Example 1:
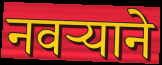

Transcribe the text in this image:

नवर्‍याने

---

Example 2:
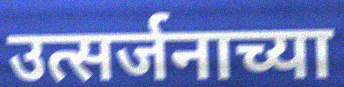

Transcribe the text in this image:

उत्सर्जनाच्या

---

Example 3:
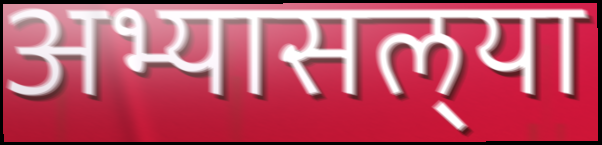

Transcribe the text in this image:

अभ्यासल्या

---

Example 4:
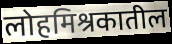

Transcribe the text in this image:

लोहमिश्रकातील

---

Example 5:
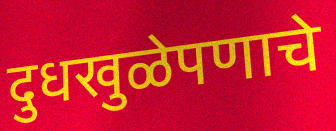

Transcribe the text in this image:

दुधखुळेपणाचे